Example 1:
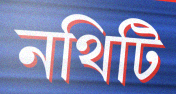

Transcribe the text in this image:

নথিটি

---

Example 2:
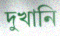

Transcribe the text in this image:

দুখানি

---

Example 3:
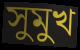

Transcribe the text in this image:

সুমুখ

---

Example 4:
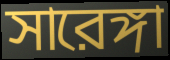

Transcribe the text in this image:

সারেঙ্গা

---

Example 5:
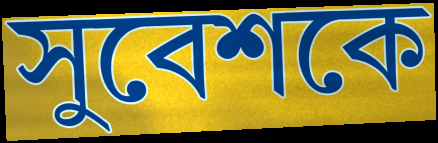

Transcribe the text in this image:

সুবেশকে